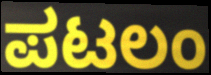
ಪಟಲಂ